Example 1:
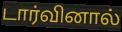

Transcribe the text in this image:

டார்வினால்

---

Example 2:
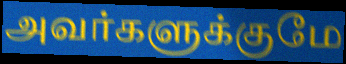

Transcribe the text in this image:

அவர்களுக்குமே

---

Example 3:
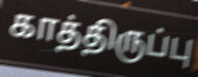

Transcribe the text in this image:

காத்திருப்பு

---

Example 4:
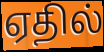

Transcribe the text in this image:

ஏதில்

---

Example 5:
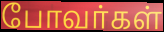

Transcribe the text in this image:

போவர்கள்